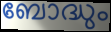
ബോദ്ധും